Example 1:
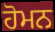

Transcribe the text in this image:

ਹੋਮਨ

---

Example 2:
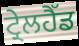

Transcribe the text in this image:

ਟ੍ਰੇਲਹੈੱਡ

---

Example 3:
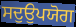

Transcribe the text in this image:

ਸਦੁਉਪਯੋਗ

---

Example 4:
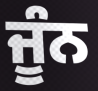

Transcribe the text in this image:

ਜੂੰਨ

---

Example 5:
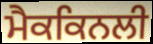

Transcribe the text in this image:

ਮੈਕਕਿਨਲੀ